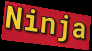
Ninja